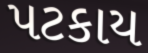
પટકાય